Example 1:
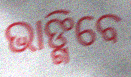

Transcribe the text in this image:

ଭାଙ୍ଗିବେ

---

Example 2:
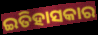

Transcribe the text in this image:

ଇତିହାସକାର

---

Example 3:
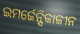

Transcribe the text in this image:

ଇମର୍ଜେନ୍ସିକାଳୀନ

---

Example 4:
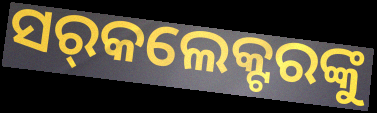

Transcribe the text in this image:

ସର୍‌କଲେକ୍ଟରଙ୍କୁ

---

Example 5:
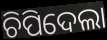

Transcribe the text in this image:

ଚିପିଦେଲା